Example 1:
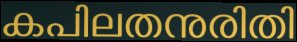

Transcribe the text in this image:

കപിലതനുരിതി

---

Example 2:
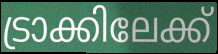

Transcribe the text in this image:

ട്രാക്കിലേക്ക്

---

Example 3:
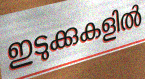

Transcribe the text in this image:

ഇടുക്കുകളിൽ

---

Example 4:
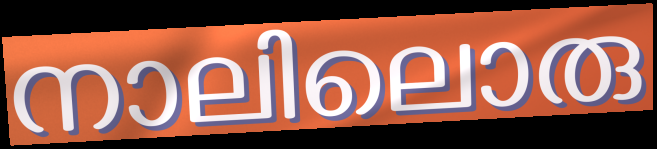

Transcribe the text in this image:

നാലിലൊരു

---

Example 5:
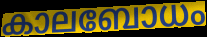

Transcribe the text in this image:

കാലബോധം